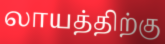
லாயத்திற்கு